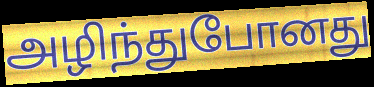
அழிந்துபோனது